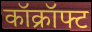
कॉक्रॉफ्ट